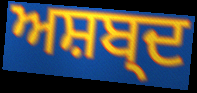
ਅਸ਼ਬ੍ਦ